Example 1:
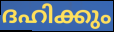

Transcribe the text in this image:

ദഹിക്കും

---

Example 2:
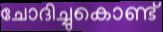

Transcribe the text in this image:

ചോദിച്ചുകൊണ്ട്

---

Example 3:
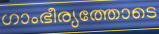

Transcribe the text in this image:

ഗാംഭീര്യത്തോടെ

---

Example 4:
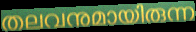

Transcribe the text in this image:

തലവനുമായിരുന്ന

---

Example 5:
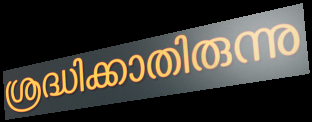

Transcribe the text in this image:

ശ്രദ്ധിക്കാതിരുന്നു